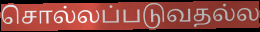
சொல்லப்படுவதல்ல